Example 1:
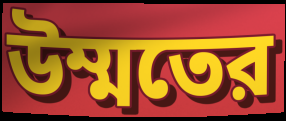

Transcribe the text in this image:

উম্মতের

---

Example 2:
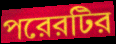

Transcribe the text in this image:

পরেরটির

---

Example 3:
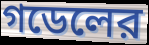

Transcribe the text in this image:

গডেলের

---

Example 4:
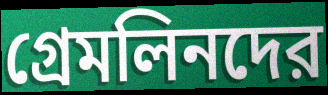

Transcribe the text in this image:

গ্রেমলিনদের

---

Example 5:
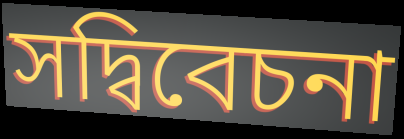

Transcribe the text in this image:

সদ্বিবেচনা